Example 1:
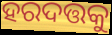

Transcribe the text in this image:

ହରଦତ୍ତକୁ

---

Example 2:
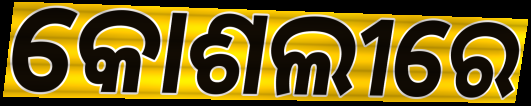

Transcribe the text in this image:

କୋଶଲୀରେ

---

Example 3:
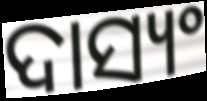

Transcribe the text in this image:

ଦାସ୍ୟଂ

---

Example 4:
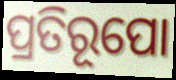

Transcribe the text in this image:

ପ୍ରତିରୂପୋ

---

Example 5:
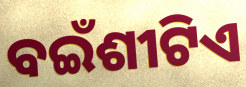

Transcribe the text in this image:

ବଇଁଶୀଟିଏ